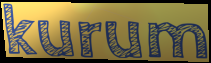
kurum